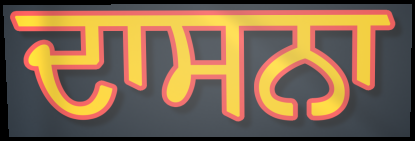
ਦਾਸਨਾ